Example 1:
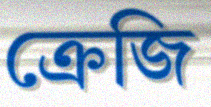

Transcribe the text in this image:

ক্রেজি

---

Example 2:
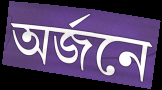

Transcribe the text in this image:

অর্জনে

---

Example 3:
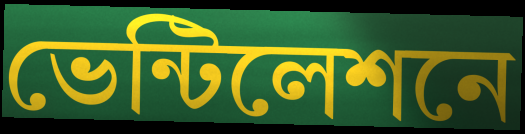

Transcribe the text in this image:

ভেন্টিলেশনে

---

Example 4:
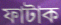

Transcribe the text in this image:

ফাটাক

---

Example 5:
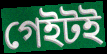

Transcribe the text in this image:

গেইটই